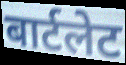
बार्टलेट